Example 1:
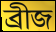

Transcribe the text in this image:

ব্ৰীজ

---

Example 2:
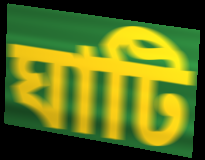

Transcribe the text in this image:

ঘাটি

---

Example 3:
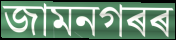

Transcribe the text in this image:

জামনগৰৰ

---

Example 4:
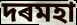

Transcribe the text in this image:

দৰমহা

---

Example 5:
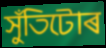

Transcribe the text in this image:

সুঁতিটোৰ